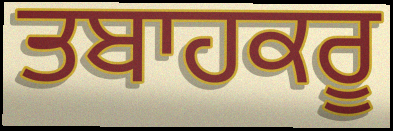
ਤਬਾਹਕਰੂ